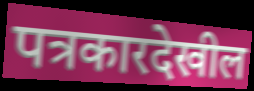
पत्रकारदेखील